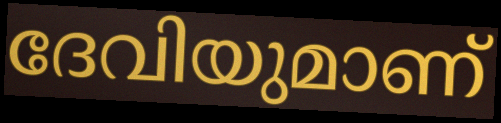
ദേവിയുമാണ്